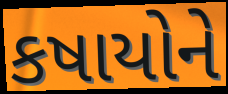
કષાયોને